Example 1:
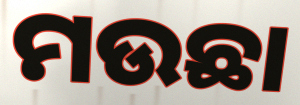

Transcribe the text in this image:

ମଉଛା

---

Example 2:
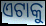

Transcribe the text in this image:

ଏଟାକୁ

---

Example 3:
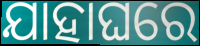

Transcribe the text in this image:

ଯାହାଘରେ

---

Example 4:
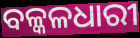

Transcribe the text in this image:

ବଳ୍କଳଧାରୀ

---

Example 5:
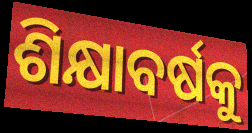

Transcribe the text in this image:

ଶିକ୍ଷାବର୍ଷକୁ